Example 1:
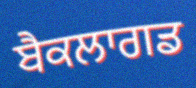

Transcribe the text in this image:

ਬੈਕਲਾਗਡ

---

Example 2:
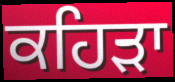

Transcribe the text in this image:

ਕਹਿੜਾ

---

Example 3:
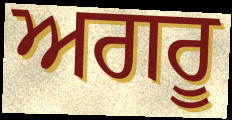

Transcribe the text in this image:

ਅਗਰੂ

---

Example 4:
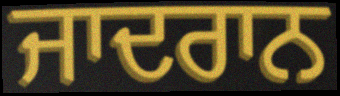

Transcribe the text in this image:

ਜਾਦਰਾਨ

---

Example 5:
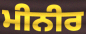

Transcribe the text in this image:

ਮੀਨੀਰ